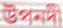
উপনদী